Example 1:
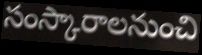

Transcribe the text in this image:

సంస్కారాలనుంచి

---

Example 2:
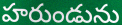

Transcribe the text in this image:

హరుండును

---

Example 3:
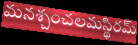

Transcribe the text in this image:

మనశ్చంచలమస్థిరమ్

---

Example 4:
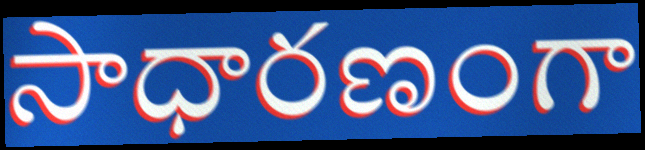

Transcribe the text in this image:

సాధారణంగా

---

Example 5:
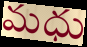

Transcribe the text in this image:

మధు